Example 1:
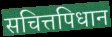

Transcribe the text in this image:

सचित्तपिधान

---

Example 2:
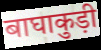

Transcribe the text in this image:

बाघाकुड़ी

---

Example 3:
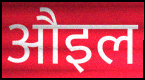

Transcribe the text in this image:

औइल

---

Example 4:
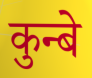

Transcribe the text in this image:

कुन्बे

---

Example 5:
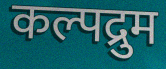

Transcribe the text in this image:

कल्पद्रुम